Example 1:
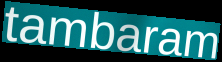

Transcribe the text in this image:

tambaram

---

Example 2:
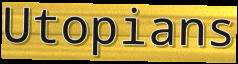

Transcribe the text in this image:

Utopians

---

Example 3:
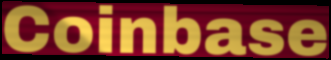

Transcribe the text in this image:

Coinbase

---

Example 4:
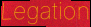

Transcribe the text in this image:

Legation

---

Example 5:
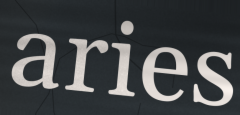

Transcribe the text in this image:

aries